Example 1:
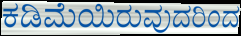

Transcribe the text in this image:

ಕಡಿಮೆಯಿರುವುದರಿಂದ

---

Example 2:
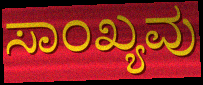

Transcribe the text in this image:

ಸಾಂಖ್ಯವು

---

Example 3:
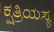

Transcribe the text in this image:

ಕ್ಷತ್ರಿಯಸ್ಯ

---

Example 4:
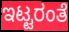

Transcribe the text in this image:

ಇಟ್ಟರಂತೆ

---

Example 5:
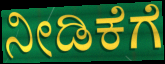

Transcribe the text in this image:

ನೀಡಿಕೆಗೆ